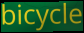
bicycle